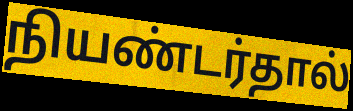
நியண்டர்தால்